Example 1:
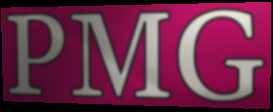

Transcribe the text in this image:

PMG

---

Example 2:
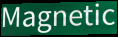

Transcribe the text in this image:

Magnetic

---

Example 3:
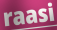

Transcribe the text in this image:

raasi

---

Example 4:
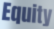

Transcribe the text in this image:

Equity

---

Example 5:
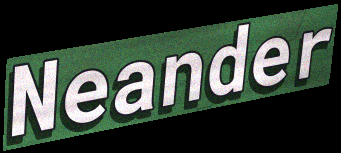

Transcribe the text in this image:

Neander